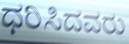
ಧರಿಸಿದವರು